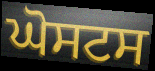
ਘੋਸਟਸ